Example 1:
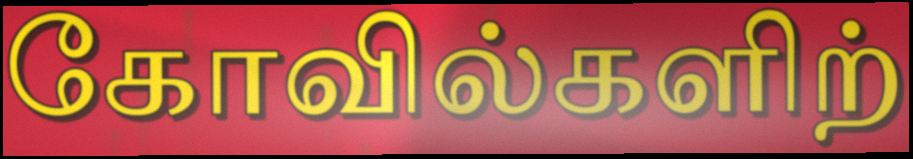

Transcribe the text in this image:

கோவில்களிற்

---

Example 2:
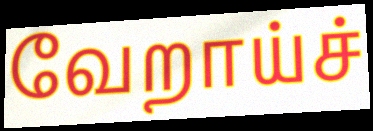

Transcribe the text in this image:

வேறாய்ச்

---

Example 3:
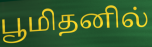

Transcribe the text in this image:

பூமிதனில்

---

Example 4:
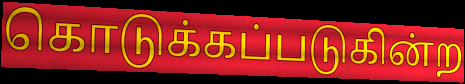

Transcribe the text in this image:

கொடுக்கப்படுகின்ற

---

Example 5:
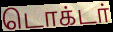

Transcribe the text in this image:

டொக்டர்